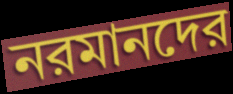
নরমানদের